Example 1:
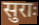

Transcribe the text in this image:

सुराः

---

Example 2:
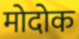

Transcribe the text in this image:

मोदोक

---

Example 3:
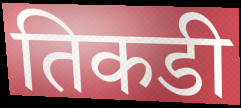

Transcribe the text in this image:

तिकडी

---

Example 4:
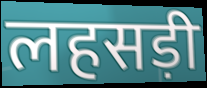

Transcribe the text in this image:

लहसड़ी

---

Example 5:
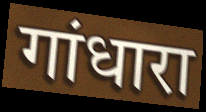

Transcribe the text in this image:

गांधारा